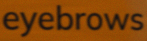
eyebrows